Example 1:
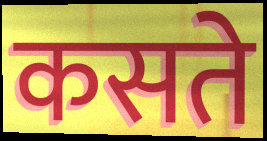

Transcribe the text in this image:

कसते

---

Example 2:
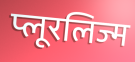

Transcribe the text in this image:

प्लूरलिज्म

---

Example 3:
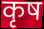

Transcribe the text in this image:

कृष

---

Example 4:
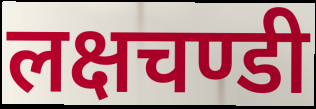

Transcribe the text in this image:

लक्षचण्डी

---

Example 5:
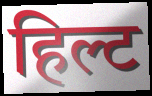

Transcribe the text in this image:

हिल्ट